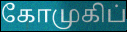
கோமுகிப்